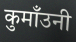
कुमाँउनी